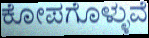
ಕೋಪಗೊಳ್ಳುವೆ